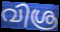
വിശ്ര